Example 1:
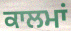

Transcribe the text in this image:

ਕਾਲਮਾਂ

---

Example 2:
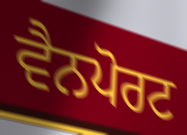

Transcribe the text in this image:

ਵੈਨਪੋਰਟ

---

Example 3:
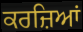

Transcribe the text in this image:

ਕਰਜ਼ਿਆਂ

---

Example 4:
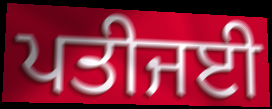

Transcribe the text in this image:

ਪਤੀਜਈ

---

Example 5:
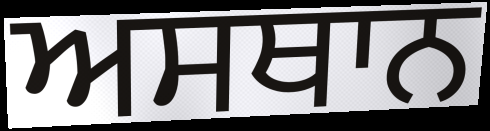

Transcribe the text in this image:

ਅਸਥਾਨ